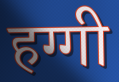
हग्गी